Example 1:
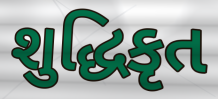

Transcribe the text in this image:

શુદ્ધિકૃત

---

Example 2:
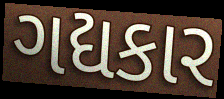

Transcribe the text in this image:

ગદ્યકાર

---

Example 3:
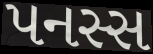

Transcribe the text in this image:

પનસ્સ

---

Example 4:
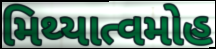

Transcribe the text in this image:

મિથ્યાત્વમોહ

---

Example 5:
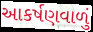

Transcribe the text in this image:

આકર્ષણવાળું